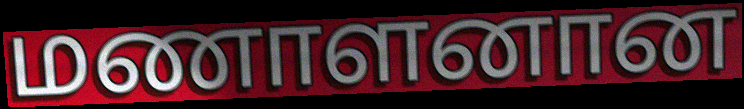
மணாளனான